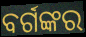
ବର୍ଗଙ୍କର